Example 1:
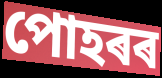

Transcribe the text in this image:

পোহৰৰ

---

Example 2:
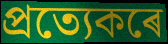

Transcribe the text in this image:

প্ৰত্যেকৰে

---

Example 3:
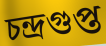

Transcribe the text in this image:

চন্দ্ৰগুপ্ত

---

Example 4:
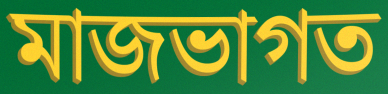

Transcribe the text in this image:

মাজভাগত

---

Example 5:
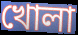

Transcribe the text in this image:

খোলা